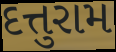
દત્તુરામ